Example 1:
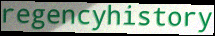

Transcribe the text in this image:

regencyhistory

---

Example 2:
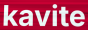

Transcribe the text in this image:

kavite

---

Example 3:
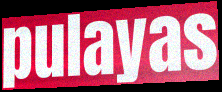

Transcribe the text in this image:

pulayas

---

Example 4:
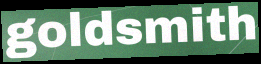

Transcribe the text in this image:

goldsmith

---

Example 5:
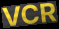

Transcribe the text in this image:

VCR